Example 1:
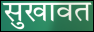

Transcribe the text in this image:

सुखावत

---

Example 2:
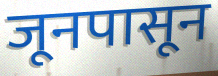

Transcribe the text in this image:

जूनपासून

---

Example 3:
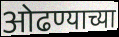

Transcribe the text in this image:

ओढण्याच्या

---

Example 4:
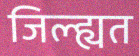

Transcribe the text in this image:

जिल्ह्यत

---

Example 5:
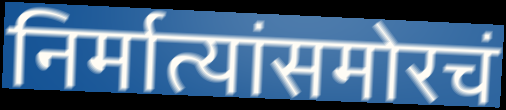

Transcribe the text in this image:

निर्मात्यांसमोरचं